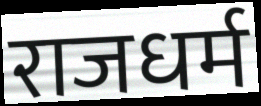
राजधर्म